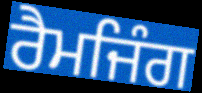
ਰੈਮਜਿੰਗ